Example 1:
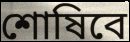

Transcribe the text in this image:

শোষিবে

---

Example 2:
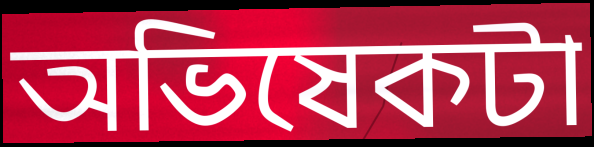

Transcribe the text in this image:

অভিষেকটা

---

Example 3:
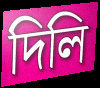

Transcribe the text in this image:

দিলি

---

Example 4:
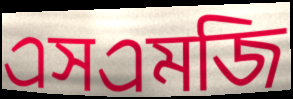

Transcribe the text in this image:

এসএমজি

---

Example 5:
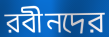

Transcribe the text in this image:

রবীনদের